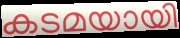
കടമയായി